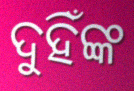
ଦୁହିଁଙ୍କ